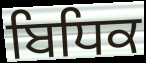
ਬਿਧਿਕ